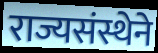
राज्यसंस्थेने